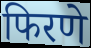
फिरणे